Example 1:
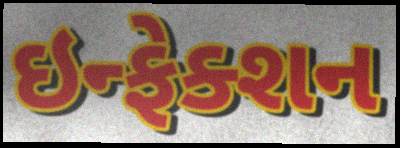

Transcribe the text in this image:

ઇન્ફેક્શન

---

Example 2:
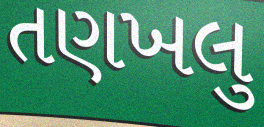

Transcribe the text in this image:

તણખલુ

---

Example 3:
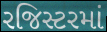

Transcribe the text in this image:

રજિસ્ટરમાં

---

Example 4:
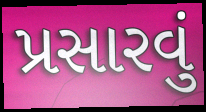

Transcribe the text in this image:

પ્રસારવું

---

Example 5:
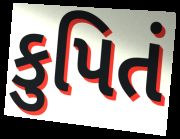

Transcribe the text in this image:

કુપિતં